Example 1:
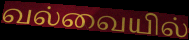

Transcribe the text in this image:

வல்வையில்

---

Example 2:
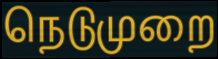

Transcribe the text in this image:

நெடுமுறை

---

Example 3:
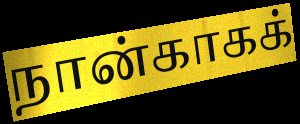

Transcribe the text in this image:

நான்காகக்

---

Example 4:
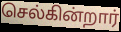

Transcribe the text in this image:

செல்கின்றார்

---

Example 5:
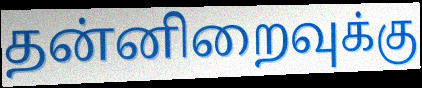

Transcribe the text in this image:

தன்னிறைவுக்கு